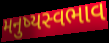
મનુષ્યસ્વભાવ